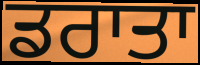
ਡਰਾਤਾ